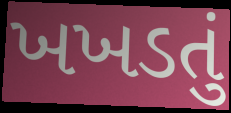
ખખડતું